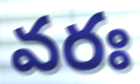
వరః